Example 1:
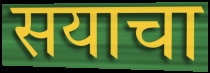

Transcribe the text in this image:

सयाचा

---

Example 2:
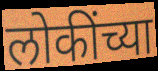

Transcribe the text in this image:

लोकींच्या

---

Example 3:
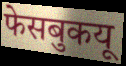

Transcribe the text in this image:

फेसबुकयू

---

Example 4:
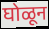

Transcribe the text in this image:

घोळून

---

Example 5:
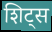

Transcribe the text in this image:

शिट्स